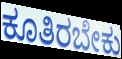
ಕೂತಿರಬೇಕು